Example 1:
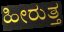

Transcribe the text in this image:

ಹೀರುತ್ತ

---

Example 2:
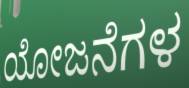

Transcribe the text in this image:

ಯೋಜನೆಗಳ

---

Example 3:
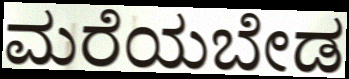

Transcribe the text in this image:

ಮರೆಯಬೇಡ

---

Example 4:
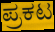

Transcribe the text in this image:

ಪ್ರಕಟ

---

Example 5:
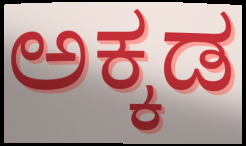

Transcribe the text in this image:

ಅಕ್ಕಡ